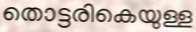
തൊട്ടരികെയുള്ള